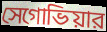
সেগোভিয়ার